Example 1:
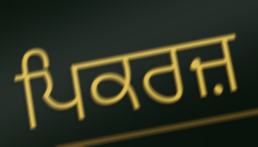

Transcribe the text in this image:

ਪਿਕਰਜ਼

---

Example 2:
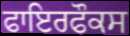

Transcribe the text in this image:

ਫਾਇਰਫੌਕਸ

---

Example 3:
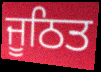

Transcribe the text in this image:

ਜੂਠਿਤ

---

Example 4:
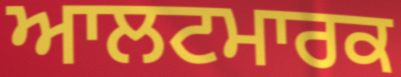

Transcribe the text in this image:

ਆਲਟਮਾਰਕ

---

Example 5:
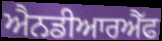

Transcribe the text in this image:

ਐਨਡੀਆਰਐੱਫ